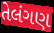
તેલંગણ